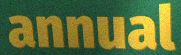
annual